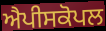
ਐਪੀਸਕੋਪਲ